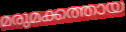
മരുമക്കത്തായ